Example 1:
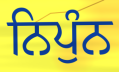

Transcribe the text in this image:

ਨਿਪੁੰਨ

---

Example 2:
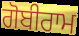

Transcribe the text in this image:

ਗੋਬੀਰਾਮ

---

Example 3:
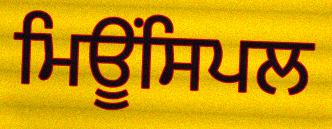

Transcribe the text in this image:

ਮਿਊਂਸਿਪਲ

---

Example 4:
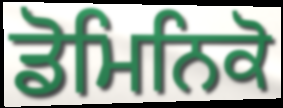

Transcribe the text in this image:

ਡੋਮਿਨਿਕੋ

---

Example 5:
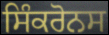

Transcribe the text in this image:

ਸਿੰਕਰੋਨਸ